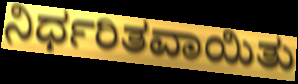
ನಿರ್ಧರಿತವಾಯಿತು